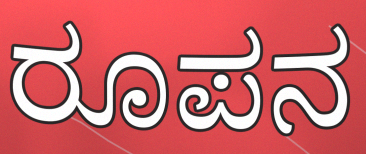
ರೂಪನ